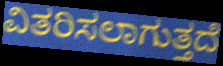
ವಿತರಿಸಲಾಗುತ್ತದೆ